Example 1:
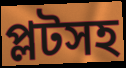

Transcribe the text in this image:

প্লটসহ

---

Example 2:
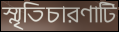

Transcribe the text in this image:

স্মৃতিচারণাটি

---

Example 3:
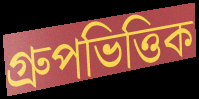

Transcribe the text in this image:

গ্রুপভিত্তিক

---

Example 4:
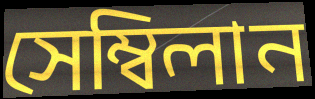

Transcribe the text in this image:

সেম্বিলান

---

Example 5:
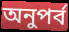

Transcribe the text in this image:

অনুপর্ব